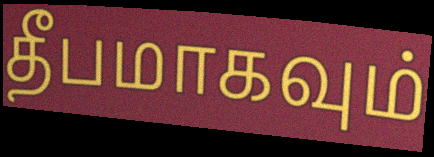
தீபமாகவும்